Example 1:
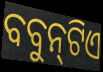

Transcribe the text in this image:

ବବୁନ୍‍ଟିଏ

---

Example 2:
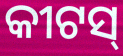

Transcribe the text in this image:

କୀଟସ୍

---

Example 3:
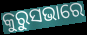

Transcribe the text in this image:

କୁରୁସଭାରେ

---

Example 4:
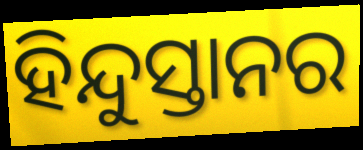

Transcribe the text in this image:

ହିନ୍ଦୁସ୍ତାନର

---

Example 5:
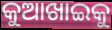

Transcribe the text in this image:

କୁଆଖାଇକୁ